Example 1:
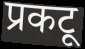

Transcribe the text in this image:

प्रकटू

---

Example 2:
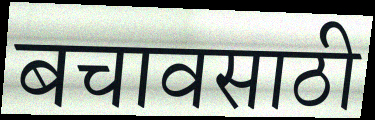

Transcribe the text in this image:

बचावसाठी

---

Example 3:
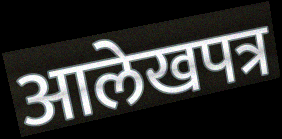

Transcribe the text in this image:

आलेखपत्र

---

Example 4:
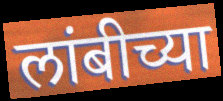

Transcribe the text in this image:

लांबीच्या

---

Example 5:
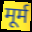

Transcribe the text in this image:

मूर्म